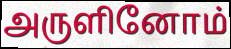
அருளினோம்